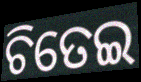
ଚିତେଇ